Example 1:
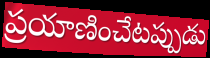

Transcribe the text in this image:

ప్రయాణించేటప్పుడు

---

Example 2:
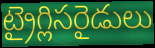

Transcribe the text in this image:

ట్రైగ్లిసరైడులు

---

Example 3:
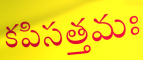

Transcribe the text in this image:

కపిసత్తమః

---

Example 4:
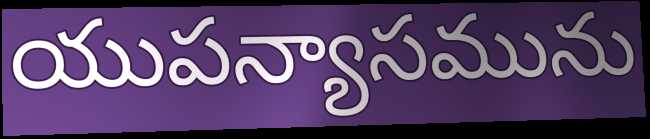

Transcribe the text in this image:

యుపన్యాసమును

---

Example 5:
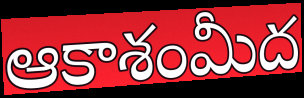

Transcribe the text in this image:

ఆకాశంమీద